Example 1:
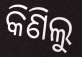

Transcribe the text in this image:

କିଣିଲୁ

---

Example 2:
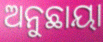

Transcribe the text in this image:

ଅନୁଛାୟା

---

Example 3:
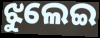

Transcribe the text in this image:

ଝୁଲେଇ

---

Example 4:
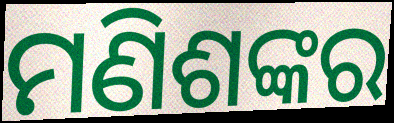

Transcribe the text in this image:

ମଣିଶଙ୍କର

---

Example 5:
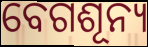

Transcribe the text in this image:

ବେଗଶୂନ୍ୟ